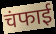
चंफाई